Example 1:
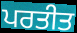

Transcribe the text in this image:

ਪਰਤੀਤ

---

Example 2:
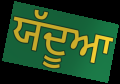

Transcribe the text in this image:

ਯੱਦੂਆ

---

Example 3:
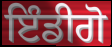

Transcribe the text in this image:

ਇੰਡੀਗੋ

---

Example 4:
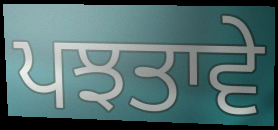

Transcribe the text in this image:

ਪਝਤਾਵੇ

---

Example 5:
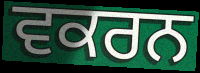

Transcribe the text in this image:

ਵਕਰਨ